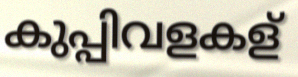
കുപ്പിവളകള്